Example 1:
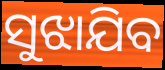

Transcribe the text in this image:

ସୁଝାଯିବ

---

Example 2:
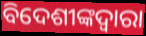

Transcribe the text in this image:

ବିଦେଶୀଙ୍କଦ୍ୱାରା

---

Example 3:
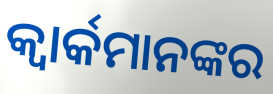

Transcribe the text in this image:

କ୍ୱାର୍କମାନଙ୍କର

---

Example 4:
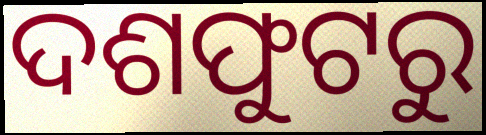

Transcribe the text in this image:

ଦଶଫୁଟରୁ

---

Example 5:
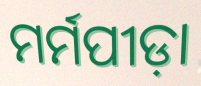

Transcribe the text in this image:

ମର୍ମପୀଡ଼ା